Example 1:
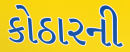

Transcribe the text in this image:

કોઠારની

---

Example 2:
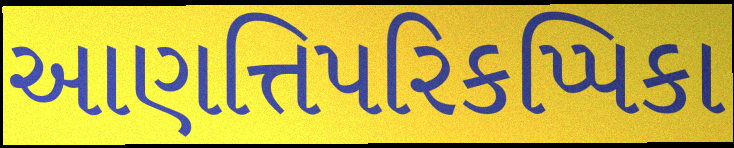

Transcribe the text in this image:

આણત્તિપરિકપ્પિકા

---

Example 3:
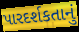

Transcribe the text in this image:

પારદર્શકતાનું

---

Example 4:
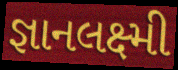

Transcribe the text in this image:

જ્ઞાનલક્ષ્મી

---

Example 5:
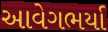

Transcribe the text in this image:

આવેગભર્યા